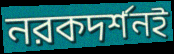
নরকদর্শনই